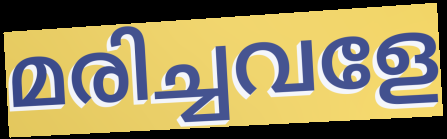
മരിച്ചവളേ